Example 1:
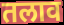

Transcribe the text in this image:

तलाव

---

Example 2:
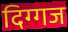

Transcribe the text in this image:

दिग्गज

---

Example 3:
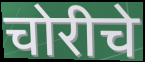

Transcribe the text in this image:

चोरीचे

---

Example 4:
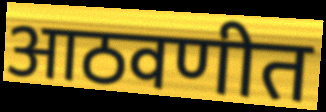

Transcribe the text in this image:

आठवणीत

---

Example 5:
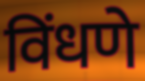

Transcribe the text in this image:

विंधणे